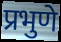
प्रभुणे